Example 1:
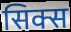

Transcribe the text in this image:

सिक्स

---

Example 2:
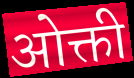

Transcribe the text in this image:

ओक्ती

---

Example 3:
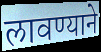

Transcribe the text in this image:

लावण्याने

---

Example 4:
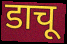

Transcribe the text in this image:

डाचू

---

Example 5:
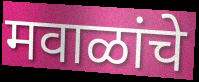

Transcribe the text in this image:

मवाळांचे